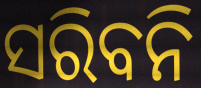
ସରିବନି